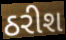
ઠરીશ